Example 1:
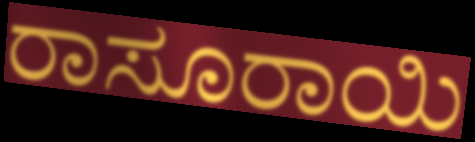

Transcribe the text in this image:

ರಾಸೂರಾಯಿ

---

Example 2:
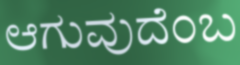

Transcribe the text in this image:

ಆಗುವುದೆಂಬ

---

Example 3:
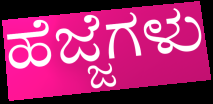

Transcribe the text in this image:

ಹೆಜ್ಜೆಗಳು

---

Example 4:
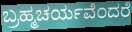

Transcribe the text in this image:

ಬ್ರಹ್ಮಚರ್ಯವೆಂದರೆ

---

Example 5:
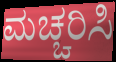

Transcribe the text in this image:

ಮಚ್ಚರಿಸಿ